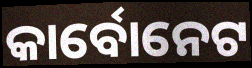
କାର୍ବୋନେଟ